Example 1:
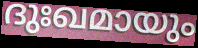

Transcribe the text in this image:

ദുഃഖമായും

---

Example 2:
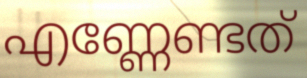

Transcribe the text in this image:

എണ്ണേണ്ടത്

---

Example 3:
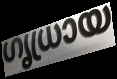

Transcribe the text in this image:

ഗൃധ്രായ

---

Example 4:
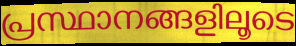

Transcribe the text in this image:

പ്രസ്ഥാനങ്ങളിലൂടെ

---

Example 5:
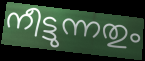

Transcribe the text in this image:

നീട്ടുന്നതും